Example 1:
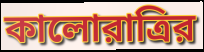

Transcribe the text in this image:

কালোরাত্রির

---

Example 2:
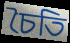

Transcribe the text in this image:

চৈতি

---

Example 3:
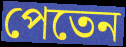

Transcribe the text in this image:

পেতেন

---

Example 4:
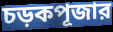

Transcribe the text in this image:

চড়কপূজার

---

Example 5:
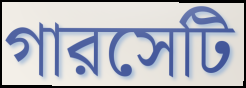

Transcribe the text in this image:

গারসেটি